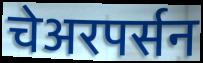
चेअरपर्सन